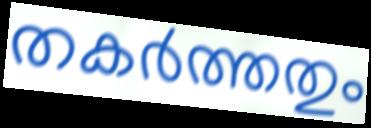
തകർത്തതും